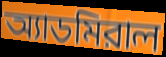
অ্যাডমিরাল